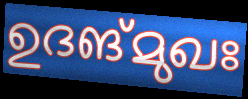
ഉദങ്മുഖഃ